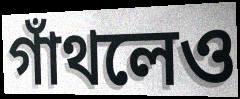
গাঁথলেও